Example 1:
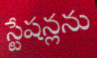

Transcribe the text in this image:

స్టేషన్లను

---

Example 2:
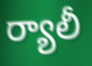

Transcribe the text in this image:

ర్యాలీ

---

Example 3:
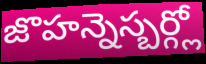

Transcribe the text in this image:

జొహన్నెస్బర్గ్లో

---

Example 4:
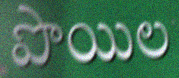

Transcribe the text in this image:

పొయిల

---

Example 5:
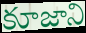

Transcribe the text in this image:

కూజాని